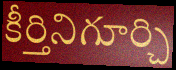
కీర్తినిగూర్చి